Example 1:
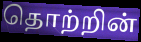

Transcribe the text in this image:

தொற்றின்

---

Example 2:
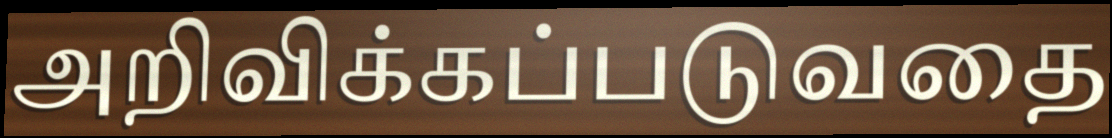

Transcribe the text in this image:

அறிவிக்கப்படுவதை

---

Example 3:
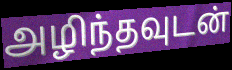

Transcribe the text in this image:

அழிந்தவுடன்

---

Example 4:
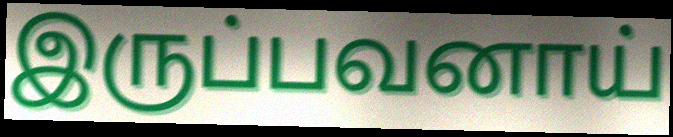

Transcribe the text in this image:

இருப்பவனாய்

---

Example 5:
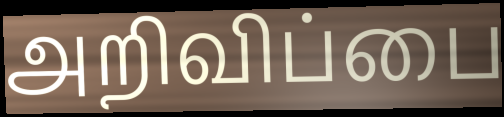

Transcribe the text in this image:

அறிவிப்பை